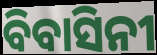
ବିବାସିନୀ